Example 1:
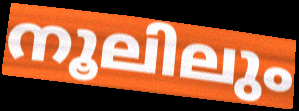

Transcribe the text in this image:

നൂലിലും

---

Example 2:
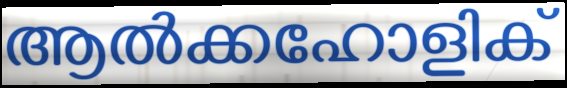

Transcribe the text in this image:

ആൽക്കഹോളിക്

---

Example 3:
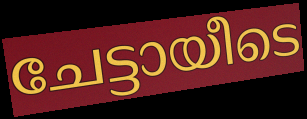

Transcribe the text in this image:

ചേട്ടായീടെ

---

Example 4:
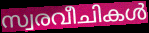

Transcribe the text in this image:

സ്വരവീചികൾ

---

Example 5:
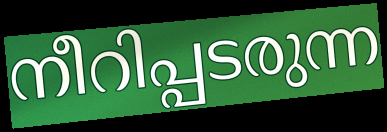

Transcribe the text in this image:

നീറിപ്പടരുന്ന